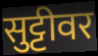
सुट्टीवर